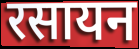
रसायन